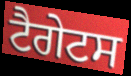
ਟੈਗੇਟਸ